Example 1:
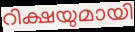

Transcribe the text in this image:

റിക്ഷയുമായി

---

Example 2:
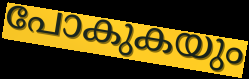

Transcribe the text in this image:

പോകുകയും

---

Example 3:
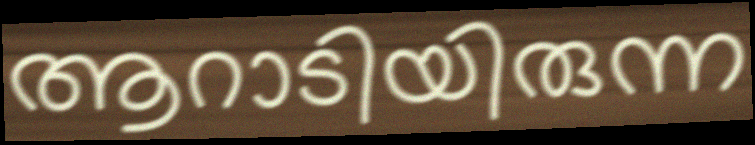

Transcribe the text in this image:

ആറാടിയിരുന്ന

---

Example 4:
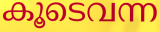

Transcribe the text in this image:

കൂടെവന്ന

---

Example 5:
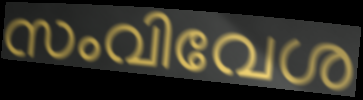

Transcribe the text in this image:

സംവിവേശ